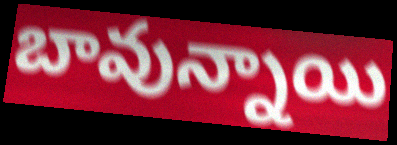
బావున్నాయి